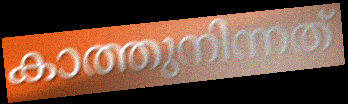
കാത്തുനിന്നത്